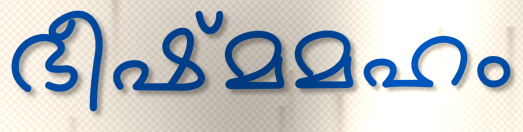
ഭീഷ്മമഹം